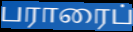
பராரைப்